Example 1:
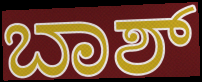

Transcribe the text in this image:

ಬಾಶ್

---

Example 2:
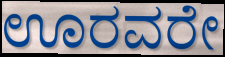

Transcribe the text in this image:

ಊರವರೇ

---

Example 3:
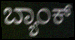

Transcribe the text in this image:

ಬ್ಯಾಂಕ್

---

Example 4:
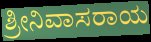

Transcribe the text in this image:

ಶ್ರೀನಿವಾಸರಾಯ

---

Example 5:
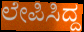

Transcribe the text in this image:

ಲೇಪಿಸಿದ್ದ